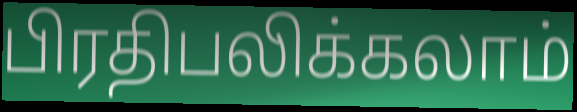
பிரதிபலிக்கலாம்